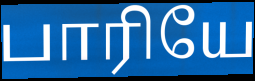
பாரியே